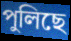
পুলিছে